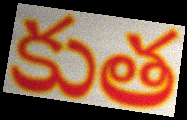
కుత